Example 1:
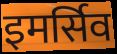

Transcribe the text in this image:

इमर्सिव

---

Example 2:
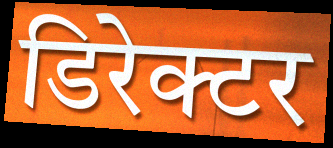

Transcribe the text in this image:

डिरेक्टर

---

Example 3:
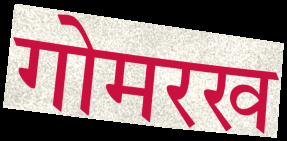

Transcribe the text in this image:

गोमरख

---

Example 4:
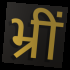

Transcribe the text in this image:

भ्रीं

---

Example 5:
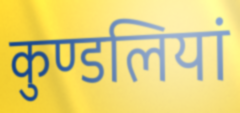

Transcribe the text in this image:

कुण्डलियां